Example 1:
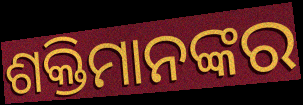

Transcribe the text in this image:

ଶକ୍ତିମାନଙ୍କର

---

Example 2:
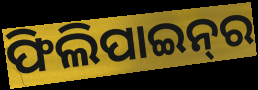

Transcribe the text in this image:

ଫିଲିପାଇନ୍‌ର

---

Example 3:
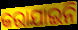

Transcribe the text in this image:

କରାଯାଇନି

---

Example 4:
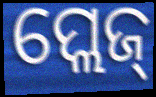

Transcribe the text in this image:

ପ୍ଲେଜ୍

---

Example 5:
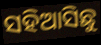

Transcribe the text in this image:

ସହିଆସିଛୁ